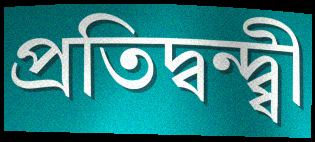
প্ৰতিদ্বন্দ্ব্বী